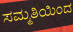
ಸಮ್ಮತಿಯಿಂದ